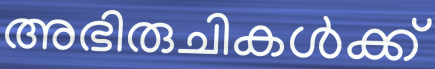
അഭിരുചികൾക്ക്